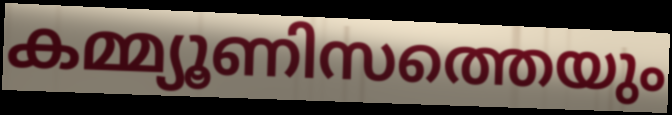
കമ്മ്യൂണിസത്തെയും